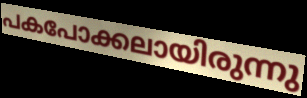
പകപോക്കലായിരുന്നു